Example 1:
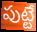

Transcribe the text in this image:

పుట్టే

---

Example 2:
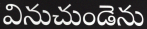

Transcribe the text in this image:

వినుచుండెను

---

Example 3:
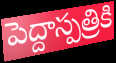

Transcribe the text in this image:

పెద్దాస్పత్రికి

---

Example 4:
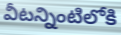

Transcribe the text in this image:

వీటన్నింటిలోకి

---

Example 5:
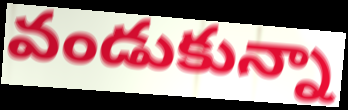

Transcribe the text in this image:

వండుకున్నా